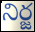
నిర్జ